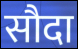
सौदा